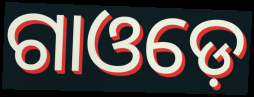
ଗାଓଡ଼େ